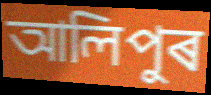
আলিপুৰ